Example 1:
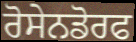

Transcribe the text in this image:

ਰੋਸੇਨਡੋਰਫ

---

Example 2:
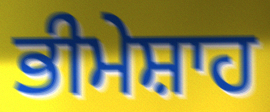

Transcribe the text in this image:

ਭੀਮੇਸ਼ਾਹ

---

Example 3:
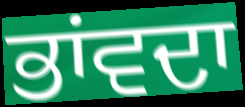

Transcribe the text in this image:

ਭਾਂਵਦਾ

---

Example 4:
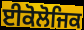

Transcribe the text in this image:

ਈਕੋਲੋਜਿਕ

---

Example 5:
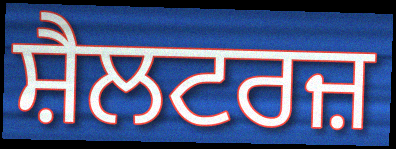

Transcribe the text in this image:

ਸ਼ੈਲਟਰਜ਼